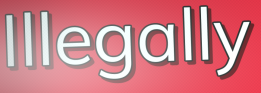
Illegally